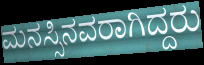
ಮನಸ್ಸಿನವರಾಗಿದ್ದರು